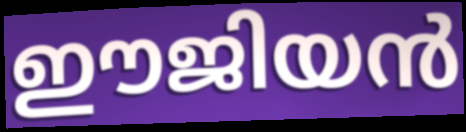
ഈജിയൻ